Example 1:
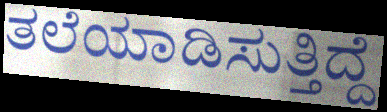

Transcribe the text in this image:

ತಲೆಯಾಡಿಸುತ್ತಿದ್ದೆ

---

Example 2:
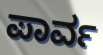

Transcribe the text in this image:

ಪಾರ್ವ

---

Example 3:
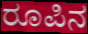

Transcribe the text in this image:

ರೂಪಿನ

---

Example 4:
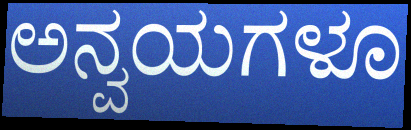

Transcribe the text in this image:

ಅನ್ವಯಗಳೂ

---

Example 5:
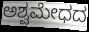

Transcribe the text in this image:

ಅಶ್ವಮೇಧದ